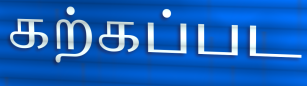
கற்கப்பட